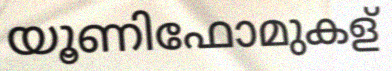
യൂണിഫോമുകള്